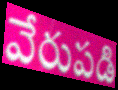
వేరుపడి